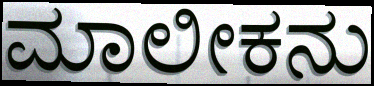
ಮಾಲೀಕನು